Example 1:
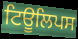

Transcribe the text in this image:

ਟਿਊਲਿਪਸ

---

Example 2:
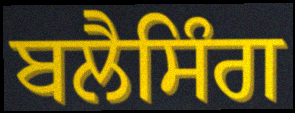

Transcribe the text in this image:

ਬਲੈਸਿੰਗ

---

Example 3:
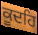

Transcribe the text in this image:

ਕੂਦਹਿ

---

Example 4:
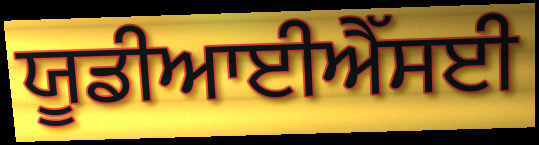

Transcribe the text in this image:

ਯੂਡੀਆਈਐੱਸਈ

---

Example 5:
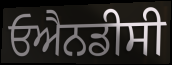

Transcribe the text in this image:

ਓਐਨਡੀਸੀ